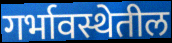
गर्भावस्थेतील